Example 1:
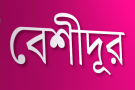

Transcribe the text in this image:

বেশীদূর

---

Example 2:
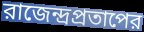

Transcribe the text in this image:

রাজেন্দ্রপ্রতাপের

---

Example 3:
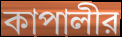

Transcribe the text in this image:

কাপালীর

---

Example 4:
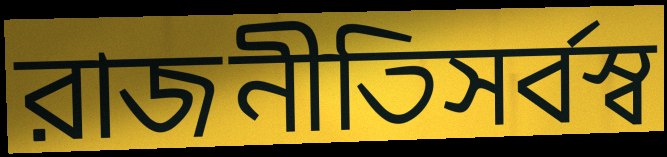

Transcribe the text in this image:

রাজনীতিসর্বস্ব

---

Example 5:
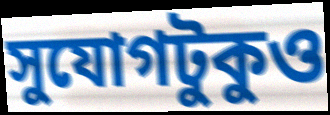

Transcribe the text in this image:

সুযোগটুকুও